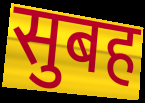
सुबह